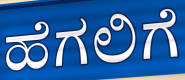
ಹೆಗಲಿಗೆ